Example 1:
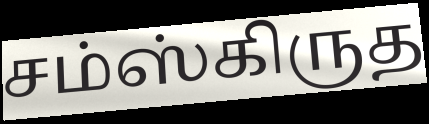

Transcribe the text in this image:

சம்ஸ்கிருத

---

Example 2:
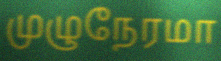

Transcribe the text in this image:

முழுநேரமா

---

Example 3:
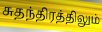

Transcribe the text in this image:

சுதந்திரத்திலும்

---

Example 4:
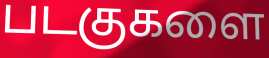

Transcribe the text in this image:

படகுகளை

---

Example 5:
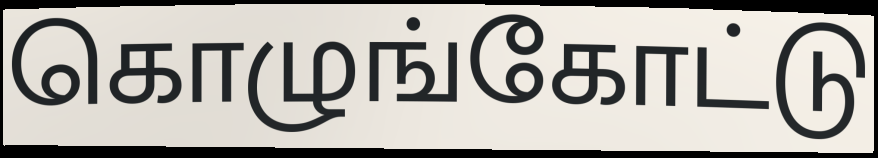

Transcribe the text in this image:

கொழுங்கோட்டு